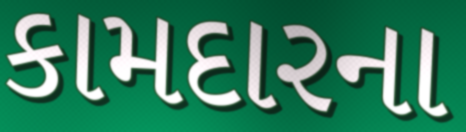
કામદારના